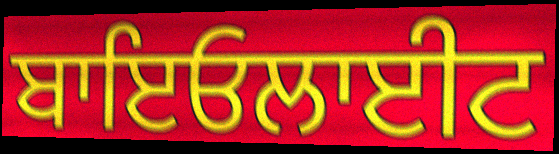
ਬਾਇਓਲਾਈਟ